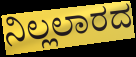
ನಿಲ್ಲಲಾರದ